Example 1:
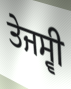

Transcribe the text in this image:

ਤੇਜਸ੍ਵੀ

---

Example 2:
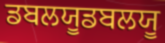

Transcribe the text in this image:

ਡਬਲਯੂਡਬਲਯੂ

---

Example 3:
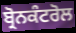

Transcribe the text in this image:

ਬ੍ਰੋਨਕੰਟਰੋਲ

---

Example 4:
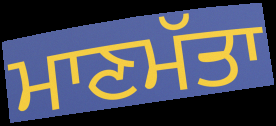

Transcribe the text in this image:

ਮਾਣਮੱਤਾ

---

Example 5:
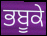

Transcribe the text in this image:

ਭਬੂਕੇ